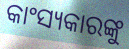
କାଂସ୍ୟକାରଙ୍କୁ